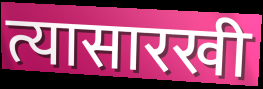
त्यासारखी